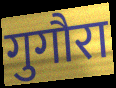
गुगौरा